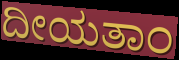
ದೀಯತಾಂ